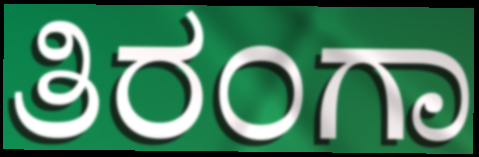
ತಿರಂಗಾ